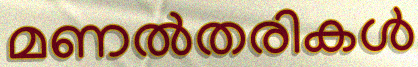
മണൽതരികൾ